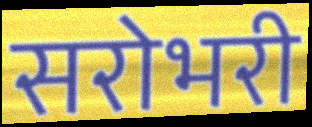
सरोभरी